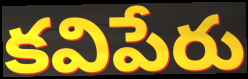
కవిపేరు